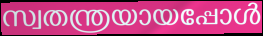
സ്വതന്ത്രയായപ്പോൾ